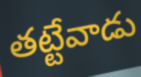
తట్టేవాడు